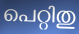
പെറ്റിതു